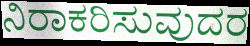
ನಿರಾಕರಿಸುವುದರ